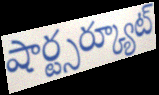
షార్ట్సర్క్యూట్